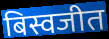
बिस्वजीत